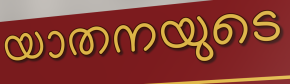
യാതനയുടെ